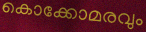
കൊക്കോമരവും